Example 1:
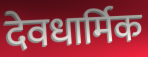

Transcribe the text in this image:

देवधार्मिक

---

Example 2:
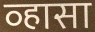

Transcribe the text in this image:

व्हासा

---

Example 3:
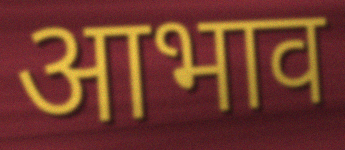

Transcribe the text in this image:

आभाव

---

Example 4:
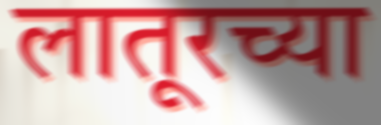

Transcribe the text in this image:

लातूरच्या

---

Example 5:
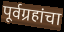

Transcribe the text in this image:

पूर्वग्रहांचा